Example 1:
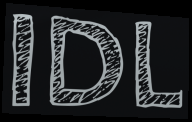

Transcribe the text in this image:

IDL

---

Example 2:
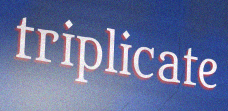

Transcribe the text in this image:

triplicate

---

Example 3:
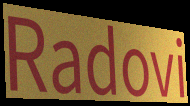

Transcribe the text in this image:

Radovi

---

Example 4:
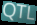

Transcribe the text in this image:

QTL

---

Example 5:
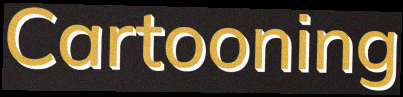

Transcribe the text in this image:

Cartooning